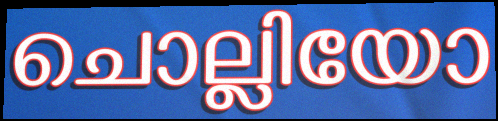
ചൊല്ലിയോ